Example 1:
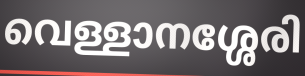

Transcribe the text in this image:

വെള്ളാനശ്ശേരി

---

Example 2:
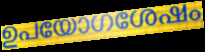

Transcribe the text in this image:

ഉപയോഗശേഷം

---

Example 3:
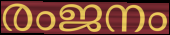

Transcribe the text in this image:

രംജനം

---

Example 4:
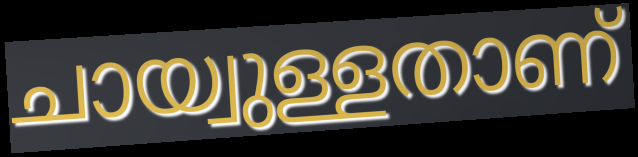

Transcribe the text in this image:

ചായ്വുള്ളതാണ്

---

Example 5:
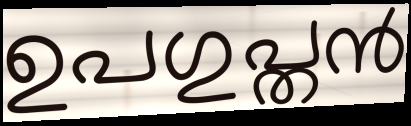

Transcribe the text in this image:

ഉപഗുപ്തൻ